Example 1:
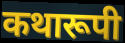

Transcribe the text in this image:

कथारूपी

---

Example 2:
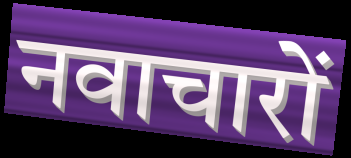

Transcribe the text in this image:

नवाचारों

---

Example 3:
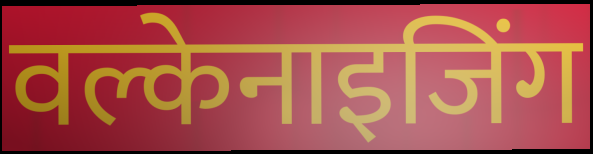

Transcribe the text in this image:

वल्केनाइजिंग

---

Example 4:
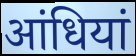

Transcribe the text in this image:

आंधियां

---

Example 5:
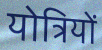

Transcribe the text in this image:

योत्रियों